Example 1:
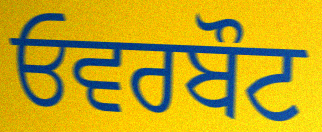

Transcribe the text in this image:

ਓਵਰਬੌਟ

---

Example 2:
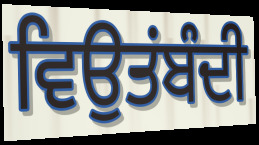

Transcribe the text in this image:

ਵਿਉਤਂਬੰਦੀ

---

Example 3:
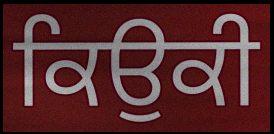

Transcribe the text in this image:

ਕਿਉਕੀ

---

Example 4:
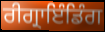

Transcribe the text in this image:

ਰੀਗ੍ਰਾਇੰਡਿੰਗ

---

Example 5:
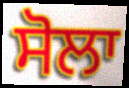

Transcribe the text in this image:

ਸੋਲਾ